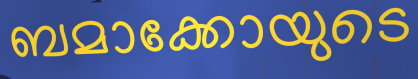
ബമാക്കോയുടെ